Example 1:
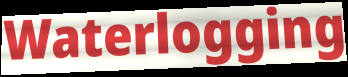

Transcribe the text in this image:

Waterlogging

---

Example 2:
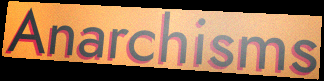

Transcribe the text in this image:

Anarchisms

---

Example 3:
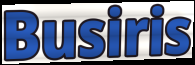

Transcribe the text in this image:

Busiris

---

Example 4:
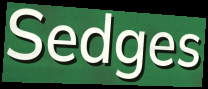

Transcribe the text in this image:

Sedges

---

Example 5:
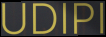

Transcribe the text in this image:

UDIPI